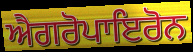
ਐਗਰੋਪਾਇਰੋਨ